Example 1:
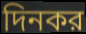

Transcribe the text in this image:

দিনকর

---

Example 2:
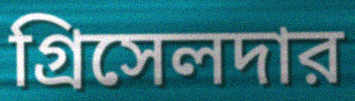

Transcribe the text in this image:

গ্রিসেলদার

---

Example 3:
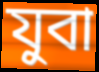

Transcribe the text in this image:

যুবা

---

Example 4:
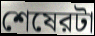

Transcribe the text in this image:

শেষেরটা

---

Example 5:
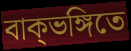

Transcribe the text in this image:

বাক্ভঙ্গিতে